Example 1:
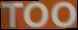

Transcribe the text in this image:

TOO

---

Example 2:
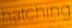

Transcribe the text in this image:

hatching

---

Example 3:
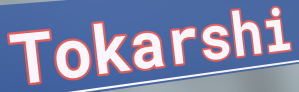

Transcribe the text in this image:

Tokarshi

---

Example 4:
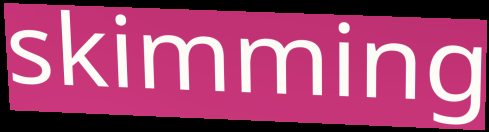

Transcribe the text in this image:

skimming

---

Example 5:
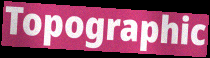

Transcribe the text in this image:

Topographic